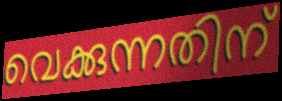
വെക്കുന്നതിന്